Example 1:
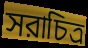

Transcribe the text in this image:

সরাচিত্র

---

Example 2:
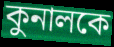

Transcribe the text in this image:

কুনালকে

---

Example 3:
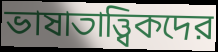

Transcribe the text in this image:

ভাষাতাত্ত্বিকদের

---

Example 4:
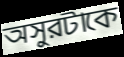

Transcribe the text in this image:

অসুরটাকে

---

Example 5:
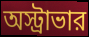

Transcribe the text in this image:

অস্ট্রাভার